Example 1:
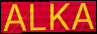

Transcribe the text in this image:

ALKA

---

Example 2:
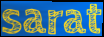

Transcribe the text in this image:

sarat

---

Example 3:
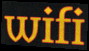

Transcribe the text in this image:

wifi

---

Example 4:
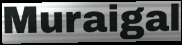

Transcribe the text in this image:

Muraigal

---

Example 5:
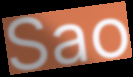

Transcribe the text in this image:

Sao